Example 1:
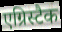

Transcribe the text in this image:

एग्रिस्टैक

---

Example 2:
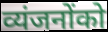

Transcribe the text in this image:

व्यंजनोंको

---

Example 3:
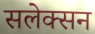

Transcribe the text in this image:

सलेक्सन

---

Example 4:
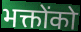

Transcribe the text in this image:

भक्तोंको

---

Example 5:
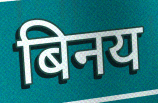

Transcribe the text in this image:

बिनय